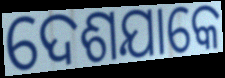
ଦେଶଯାକେ